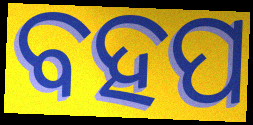
ବହପ